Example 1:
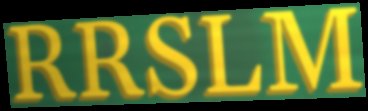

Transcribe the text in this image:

RRSLM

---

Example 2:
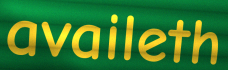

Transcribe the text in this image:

availeth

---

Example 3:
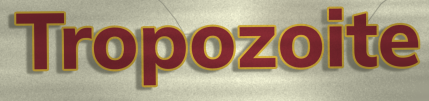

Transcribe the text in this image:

Tropozoite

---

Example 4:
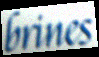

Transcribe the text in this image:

brines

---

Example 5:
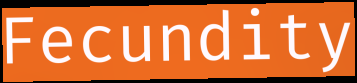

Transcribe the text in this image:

Fecundity